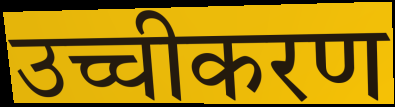
उच्चीकरण